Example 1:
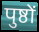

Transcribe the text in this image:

पुष्ठों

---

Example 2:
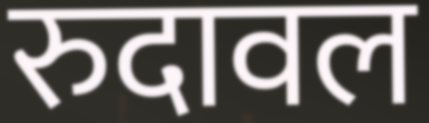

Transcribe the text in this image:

रुदावल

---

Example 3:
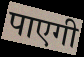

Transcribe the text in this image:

पाएगी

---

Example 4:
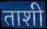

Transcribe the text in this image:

ताशी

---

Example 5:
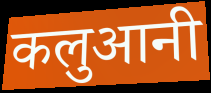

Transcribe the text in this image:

कलुआनी